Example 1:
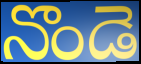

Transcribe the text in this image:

నొండె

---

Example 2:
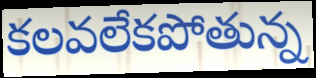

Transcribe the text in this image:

కలవలేకపోతున్న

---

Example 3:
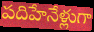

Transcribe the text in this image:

పదిహేనేళ్లుగా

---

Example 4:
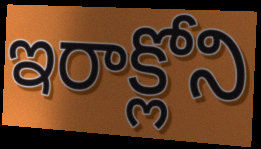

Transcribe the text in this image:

ఇరాక్లోని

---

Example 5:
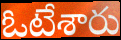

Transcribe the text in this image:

ఓటేశారు